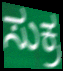
ಸುಕ್ರ